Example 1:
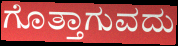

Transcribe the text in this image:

ಗೊತ್ತಾಗುವದು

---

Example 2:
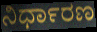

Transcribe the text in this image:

ನಿರ್ಧಾರಣ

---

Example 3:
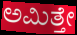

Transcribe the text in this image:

ಅಮಿತ್ತೇ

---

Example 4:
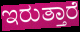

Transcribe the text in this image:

ಇರುತ್ತಾರೆ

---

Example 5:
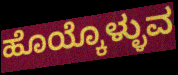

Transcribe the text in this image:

ಹೊಯ್ಕೊಳ್ಳುವ